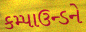
કમ્પાઉન્ડને